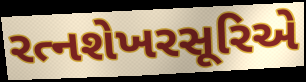
રત્નશેખરસૂરિએ